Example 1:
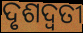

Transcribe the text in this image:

ଦୃଶଦ୍ୱତୀ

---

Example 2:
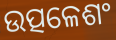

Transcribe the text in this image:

ଉତ୍ପଳେଶଂ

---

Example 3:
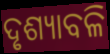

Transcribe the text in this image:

ଦୃଶ୍ୟାବଳି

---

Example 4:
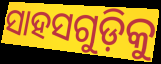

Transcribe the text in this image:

ସାହସଗୁଡ଼ିକୁ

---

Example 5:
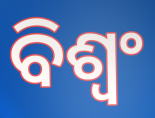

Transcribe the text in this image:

ବିଶ୍ୱଂ